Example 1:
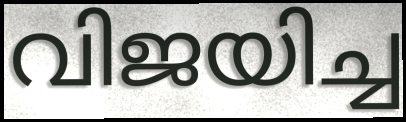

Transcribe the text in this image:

വിജയിച്ച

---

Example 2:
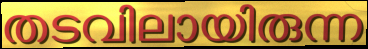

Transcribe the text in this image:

തടവിലായിരുന്ന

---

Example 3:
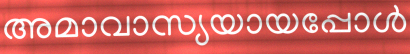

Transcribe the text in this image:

അമാവാസ്യയായപ്പോൾ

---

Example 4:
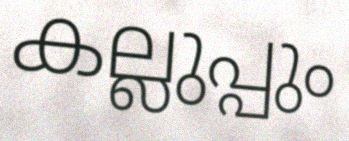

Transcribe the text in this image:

കല്ലുപ്പും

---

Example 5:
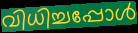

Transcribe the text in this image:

വിധിച്ചപ്പോൾ